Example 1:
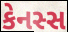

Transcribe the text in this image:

કેનસ્સ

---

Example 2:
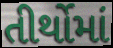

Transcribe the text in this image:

તીર્થોમાં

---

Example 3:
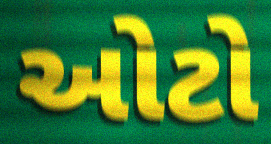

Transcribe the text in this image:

ઓટો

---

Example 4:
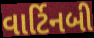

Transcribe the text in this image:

વાર્ટિનબી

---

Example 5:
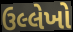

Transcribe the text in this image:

ઉલ્લેખો